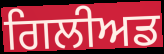
ਗਿਲੀਅਡ